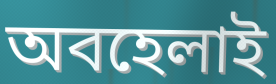
অবহেলাই